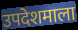
उपदेशमाला